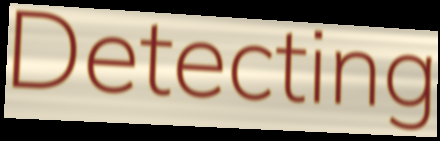
Detecting